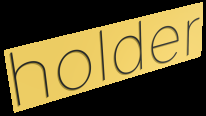
holder